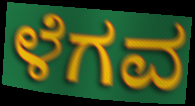
ಳೆಗವ